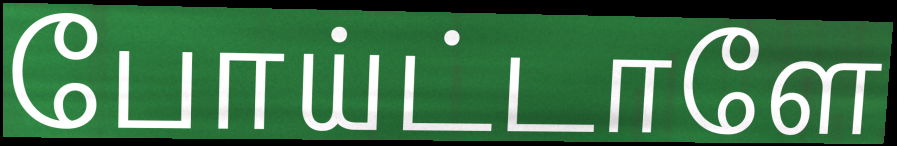
போய்ட்டாளே